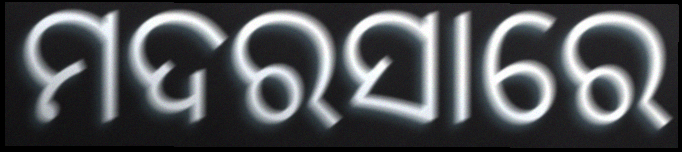
ମଦରସାରେ